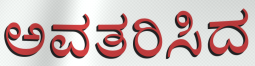
ಅವತರಿಸಿದ